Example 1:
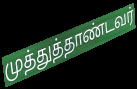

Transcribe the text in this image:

முத்துத்தாண்டவர்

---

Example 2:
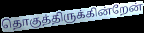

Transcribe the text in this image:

தொகுத்திருக்கின்றேன்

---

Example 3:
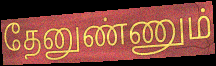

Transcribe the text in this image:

தேனுண்ணும்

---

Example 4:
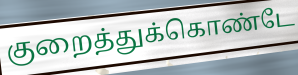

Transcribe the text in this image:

குறைத்துக்கொண்டே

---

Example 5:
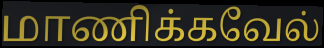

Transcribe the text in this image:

மாணிக்கவேல்